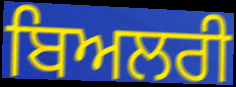
ਬਿਅਲਰੀ